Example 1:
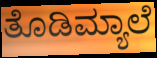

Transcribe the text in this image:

ತೊಡಿಮ್ಯಾಲೆ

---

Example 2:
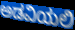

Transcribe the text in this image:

ಅಡವಿಯಲಿ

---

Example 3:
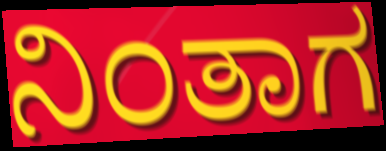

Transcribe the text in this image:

ನಿಂತಾಗ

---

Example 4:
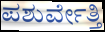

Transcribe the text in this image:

ಪಶುರ್ವೇತ್ತಿ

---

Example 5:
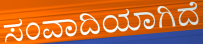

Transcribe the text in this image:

ಸಂವಾದಿಯಾಗಿದೆ